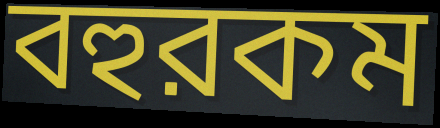
বহুরকম